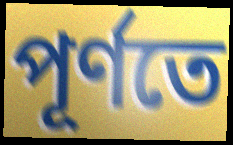
পূর্ণতে